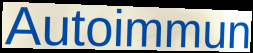
Autoimmun